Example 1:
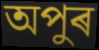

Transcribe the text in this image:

অপুৰ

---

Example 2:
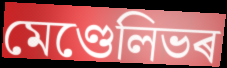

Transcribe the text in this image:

মেণ্ডেলিভৰ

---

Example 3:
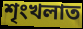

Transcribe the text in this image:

শৃংখলাত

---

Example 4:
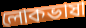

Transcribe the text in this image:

লোকভাষা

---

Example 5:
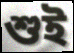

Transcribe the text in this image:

শুই